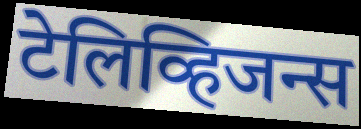
टेलिव्हिजन्स